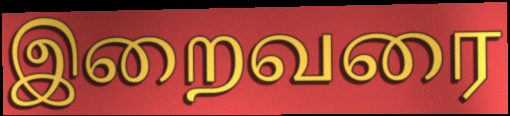
இறைவரை